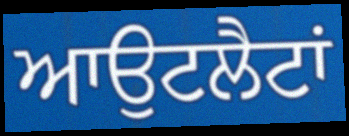
ਆਉਟਲੈਟਾਂ